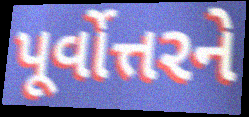
પૂર્વોત્તરને